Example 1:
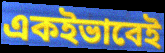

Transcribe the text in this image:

একইভাবেই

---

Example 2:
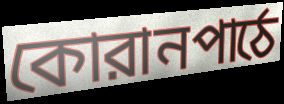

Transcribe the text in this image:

কোরানপাঠে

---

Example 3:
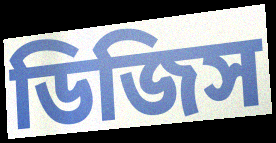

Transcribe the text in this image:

ডিজিস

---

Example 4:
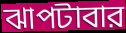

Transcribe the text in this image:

ঝাপটাবার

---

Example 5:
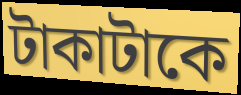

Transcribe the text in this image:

টাকাটাকে